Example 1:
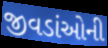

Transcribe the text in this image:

જીવડાંઓની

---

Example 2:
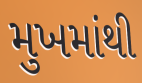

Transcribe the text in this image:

મુખમાંથી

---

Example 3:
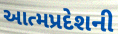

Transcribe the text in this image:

આત્મપ્રદેશની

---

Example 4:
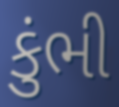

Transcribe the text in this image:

કુંભી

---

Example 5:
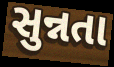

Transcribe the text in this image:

સુન્નતા